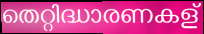
തെറ്റിദ്ധാരണകള്